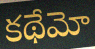
కథేమో